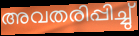
അവതരിപ്പിച്ചു്